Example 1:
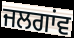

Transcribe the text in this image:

ਜਲਗਾਂਵ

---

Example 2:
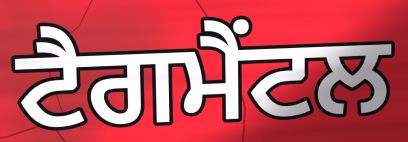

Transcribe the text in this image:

ਟੈਗਮੈਂਟਲ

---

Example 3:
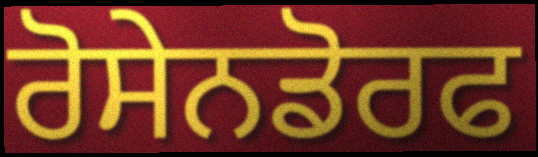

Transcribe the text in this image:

ਰੋਸੇਨਡੋਰਫ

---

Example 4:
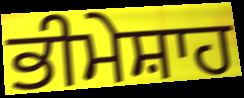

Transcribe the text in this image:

ਭੀਮੇਸ਼ਾਹ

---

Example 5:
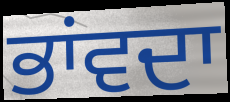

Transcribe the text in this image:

ਭਾਂਵਦਾ